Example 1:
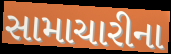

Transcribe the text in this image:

સામાચારીના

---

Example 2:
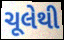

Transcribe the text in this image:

ચૂલેથી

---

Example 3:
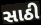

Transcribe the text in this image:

સાઠી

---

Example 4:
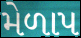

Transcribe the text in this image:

મેળાપ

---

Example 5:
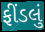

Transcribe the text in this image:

ફીંડલું